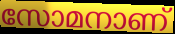
സോമനാണ്